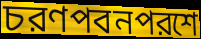
চরণপবনপরশে